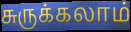
சுருக்கலாம்